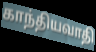
காந்தியவாதி